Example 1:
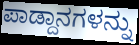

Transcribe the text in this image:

ಪಾಡ್ದಾನಗಳನ್ನು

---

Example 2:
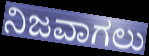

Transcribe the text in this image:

ನಿಜವಾಗಲು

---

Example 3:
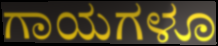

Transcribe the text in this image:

ಗಾಯಗಳೂ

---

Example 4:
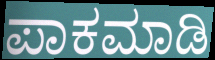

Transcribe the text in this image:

ಪಾಕಮಾಡಿ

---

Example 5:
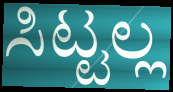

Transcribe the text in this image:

ಸಿಟ್ಟಲ್ಲ